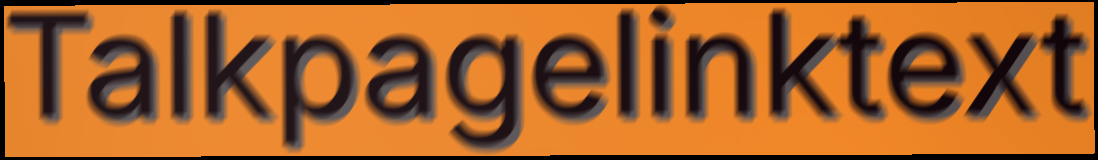
Talkpagelinktext